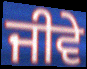
ਜੀਵੇ